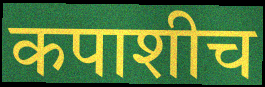
कपाशीच